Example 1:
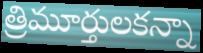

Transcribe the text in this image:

త్రిమూర్తులకన్నా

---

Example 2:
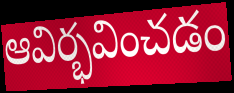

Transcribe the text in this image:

ఆవిర్భవించడం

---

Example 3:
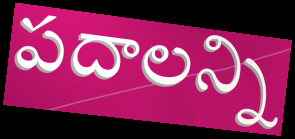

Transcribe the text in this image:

పదాలన్ని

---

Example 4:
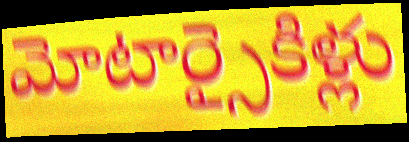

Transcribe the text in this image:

మోటార్సైకిళ్లు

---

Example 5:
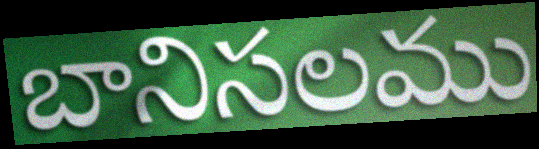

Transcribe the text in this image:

బానిసలము